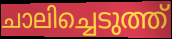
ചാലിച്ചെടുത്ത്